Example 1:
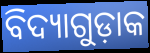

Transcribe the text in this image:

ବିଦ୍ୟାଗୁଡ଼ାକ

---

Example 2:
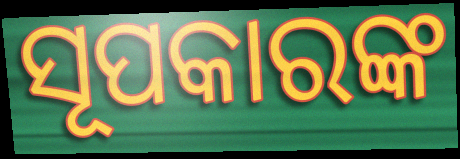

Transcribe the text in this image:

ସୂପକାରଙ୍କ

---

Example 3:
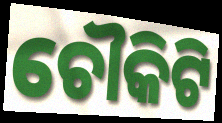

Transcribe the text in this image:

ଚୌକିଟି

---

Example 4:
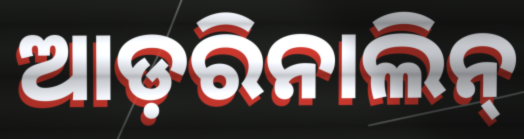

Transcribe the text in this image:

ଆଡ଼ରିନାଲିନ୍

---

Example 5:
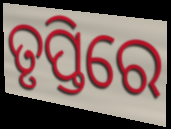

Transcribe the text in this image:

ତୃପ୍ତିରେ